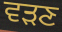
ਵੜਣ